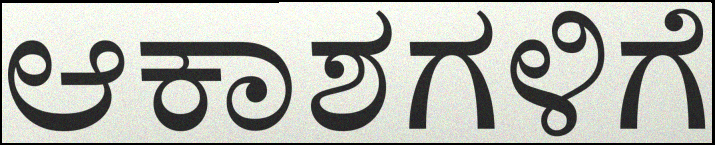
ಆಕಾಶಗಳಿಗೆ